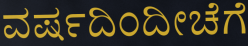
ವರ್ಷದಿಂದೀಚೆಗೆ